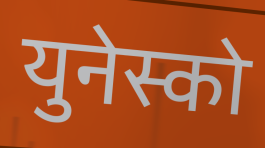
युनेस्को